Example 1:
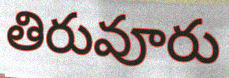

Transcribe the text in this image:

తిరువూరు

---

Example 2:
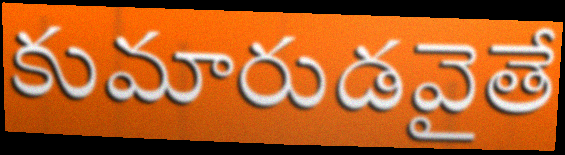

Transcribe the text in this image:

కుమారుడవైతే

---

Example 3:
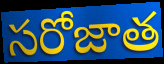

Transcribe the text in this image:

సరోజాత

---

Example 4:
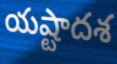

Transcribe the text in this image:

యష్టాదశ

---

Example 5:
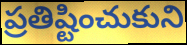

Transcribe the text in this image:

ప్రతిష్టించుకుని